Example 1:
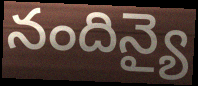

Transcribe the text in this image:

నందిన్యై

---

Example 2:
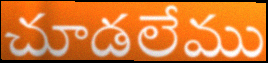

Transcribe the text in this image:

చూడలేము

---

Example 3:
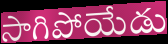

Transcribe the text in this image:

సాగిపోయేడు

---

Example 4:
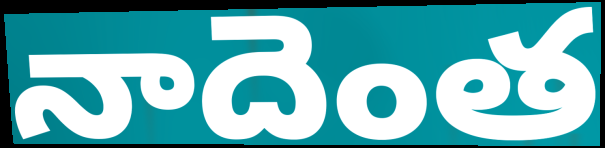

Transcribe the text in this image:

నాదెంత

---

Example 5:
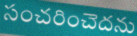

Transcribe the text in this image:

సంచరించెదను